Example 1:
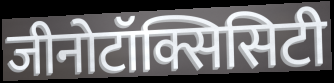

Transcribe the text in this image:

जीनोटॉक्सिसिटी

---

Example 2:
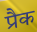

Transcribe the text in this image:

प्रैक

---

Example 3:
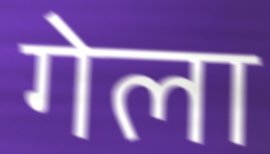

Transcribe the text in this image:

गेला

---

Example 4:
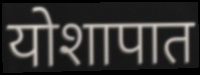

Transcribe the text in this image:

योशापात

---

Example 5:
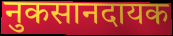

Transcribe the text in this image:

नुकसानदायक